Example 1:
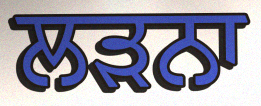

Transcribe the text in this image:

ਲੜਨਾ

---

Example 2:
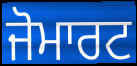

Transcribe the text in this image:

ਜੋਮਾਰਟ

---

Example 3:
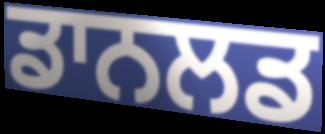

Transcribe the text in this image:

ਡਾਨਲਡ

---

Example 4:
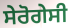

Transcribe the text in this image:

ਸੇਰੋਗੇਸੀ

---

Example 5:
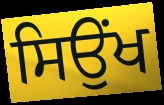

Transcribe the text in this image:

ਸਿਉਂਖ